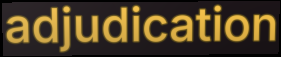
adjudication